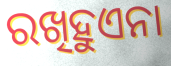
ରଖିହୁଏନା